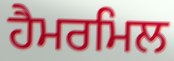
ਹੈਮਰਮਿਲ